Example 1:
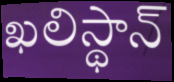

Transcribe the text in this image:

ఖలిస్థాన్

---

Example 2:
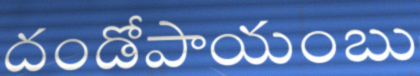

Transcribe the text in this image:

దండోపాయంబు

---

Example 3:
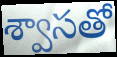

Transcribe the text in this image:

శ్వాసతో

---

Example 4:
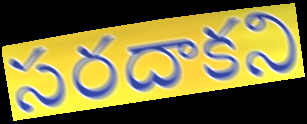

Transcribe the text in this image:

సరదాకని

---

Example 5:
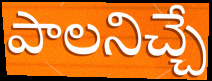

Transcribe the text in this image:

పాలనిచ్చే